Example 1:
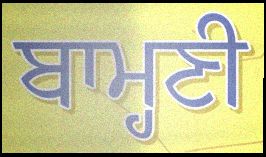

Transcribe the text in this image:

ਬਾਮ੍ਹਣੀ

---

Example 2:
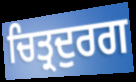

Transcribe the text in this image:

ਚਿਤ੍ਰਦੁਰਗ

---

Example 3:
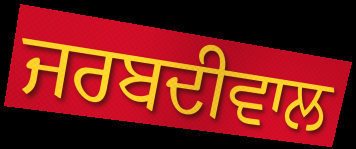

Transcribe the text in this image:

ਜਰਬਦੀਵਾਲ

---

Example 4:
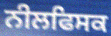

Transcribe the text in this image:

ਨੀਲਫਿਸਕ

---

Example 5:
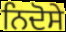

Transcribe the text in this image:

ਨਿਦੋਸੇ